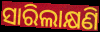
ସାରିଲାକ୍ଷଣି